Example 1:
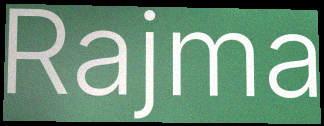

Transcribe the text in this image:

Rajma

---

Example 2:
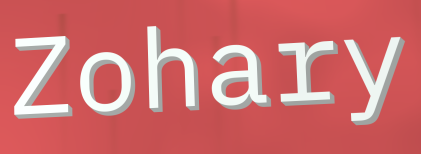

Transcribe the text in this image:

Zohary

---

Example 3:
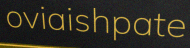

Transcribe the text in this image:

oviaishpate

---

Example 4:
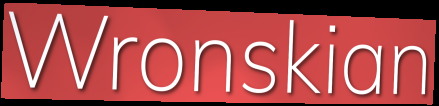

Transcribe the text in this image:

Wronskian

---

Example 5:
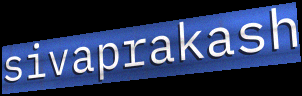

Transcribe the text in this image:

sivaprakash